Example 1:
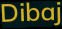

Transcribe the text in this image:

Dibaj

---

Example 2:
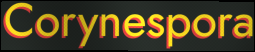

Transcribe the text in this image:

Corynespora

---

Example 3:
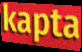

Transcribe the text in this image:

kapta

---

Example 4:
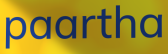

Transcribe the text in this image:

paartha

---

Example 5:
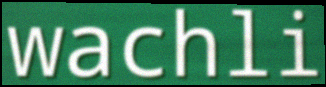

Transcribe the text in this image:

wachli